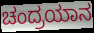
ಚಂದ್ರಯಾನ